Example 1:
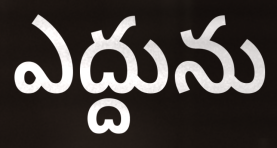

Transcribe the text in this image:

ఎద్దును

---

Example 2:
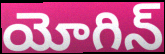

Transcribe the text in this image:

యోగిన్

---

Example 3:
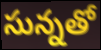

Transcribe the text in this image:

సున్నతో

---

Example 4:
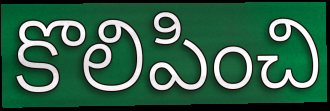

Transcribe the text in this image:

కొలిపించి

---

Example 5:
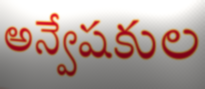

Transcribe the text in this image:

అన్వేషకుల